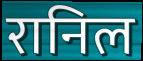
रानिल